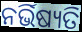
ନର୍ଭିଷ୍ୟତି